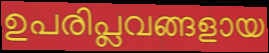
ഉപരിപ്ലവങ്ങളായ